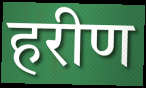
हरीण